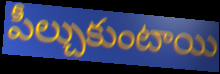
పీల్చుకుంటాయి